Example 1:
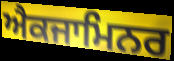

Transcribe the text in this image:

ਐਕਜਾਮਿਨਰ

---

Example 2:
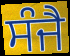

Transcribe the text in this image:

ਸੰਜੈ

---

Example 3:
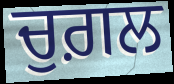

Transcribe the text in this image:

ਚੁਗ਼ਲ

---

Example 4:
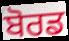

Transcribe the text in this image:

ਬੋਰਡ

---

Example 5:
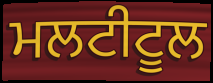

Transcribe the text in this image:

ਮਲਟੀਟੂਲ